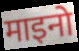
माइनो